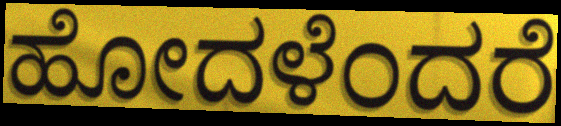
ಹೋದಳೆಂದರೆ